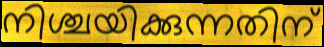
നിശ്ചയിക്കുന്നതിന്